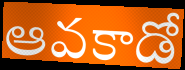
ఆవకాడో